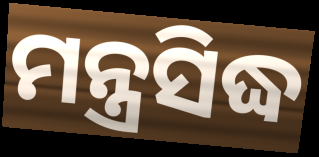
ମନ୍ତ୍ରସିଦ୍ଧ